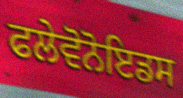
ਫਲੇਵੋਨੋਇਡਸ